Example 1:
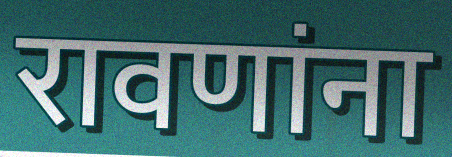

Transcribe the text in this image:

रावणांना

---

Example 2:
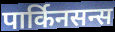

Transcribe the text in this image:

पार्किनसन्स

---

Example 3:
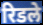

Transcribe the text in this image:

रिडले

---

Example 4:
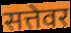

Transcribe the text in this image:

सत्तेवर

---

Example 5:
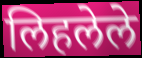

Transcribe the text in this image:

लिहलेले